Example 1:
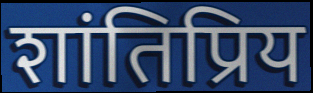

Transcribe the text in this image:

शांतिप्रिय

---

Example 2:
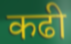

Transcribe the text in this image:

कढी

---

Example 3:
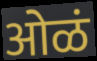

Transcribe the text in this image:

ओळं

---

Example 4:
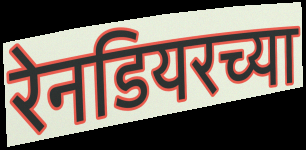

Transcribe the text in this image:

रेनडियरच्या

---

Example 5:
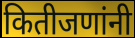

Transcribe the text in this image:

कितीजणांनी